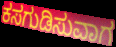
ಕಸಗುಡಿಸುವಾಗ